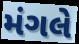
મંગલે